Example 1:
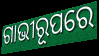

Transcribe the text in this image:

ଗାଭୀରୂପରେ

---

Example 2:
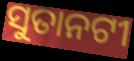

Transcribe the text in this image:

ସୁତାନଟୀ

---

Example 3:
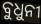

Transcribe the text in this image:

ବୁଧୁନୀ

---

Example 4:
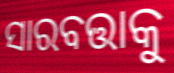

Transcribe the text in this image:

ସାରବତ୍ତାକୁ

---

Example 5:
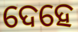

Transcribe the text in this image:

ଦେହେ